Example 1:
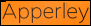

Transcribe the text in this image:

Apperley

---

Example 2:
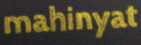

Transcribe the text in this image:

mahinyat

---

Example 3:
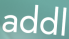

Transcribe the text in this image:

addl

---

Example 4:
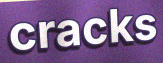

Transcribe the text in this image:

cracks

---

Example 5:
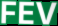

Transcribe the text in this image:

FEV